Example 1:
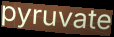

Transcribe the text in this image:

pyruvate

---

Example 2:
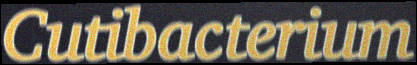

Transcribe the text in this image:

Cutibacterium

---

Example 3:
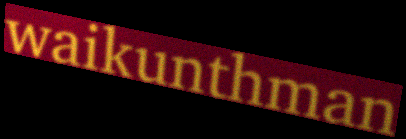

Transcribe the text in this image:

waikunthman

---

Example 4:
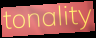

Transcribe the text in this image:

tonality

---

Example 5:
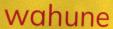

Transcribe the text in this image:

wahune